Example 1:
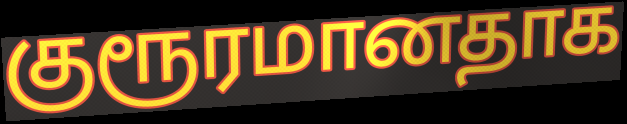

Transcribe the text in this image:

குரூரமானதாக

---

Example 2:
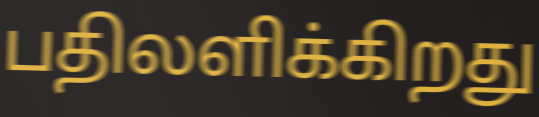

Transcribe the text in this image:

பதிலளிக்கிறது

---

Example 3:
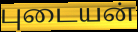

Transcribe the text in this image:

புடையன்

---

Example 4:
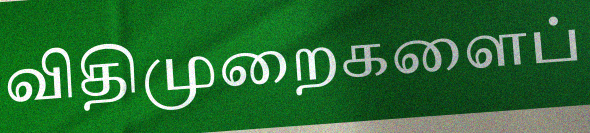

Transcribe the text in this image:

விதிமுறைகளைப்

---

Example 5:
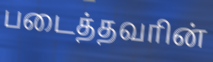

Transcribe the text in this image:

படைத்தவரின்